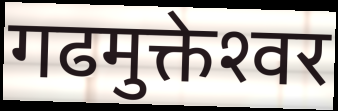
गढमुक्तेश्वर